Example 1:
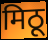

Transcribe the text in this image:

मिठू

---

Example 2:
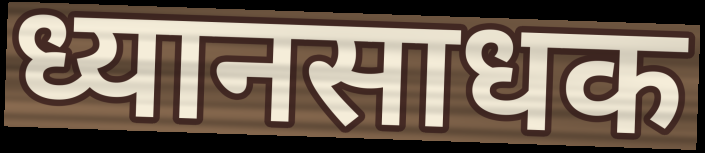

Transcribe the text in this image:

ध्यानसाधक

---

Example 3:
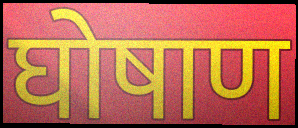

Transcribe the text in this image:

घोषाण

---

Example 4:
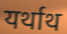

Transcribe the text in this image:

यर्थाथ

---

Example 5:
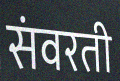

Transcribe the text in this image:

संवरती